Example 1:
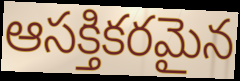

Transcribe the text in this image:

ఆసక్తికరమైన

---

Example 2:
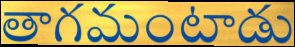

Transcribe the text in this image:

తాగమంటాడు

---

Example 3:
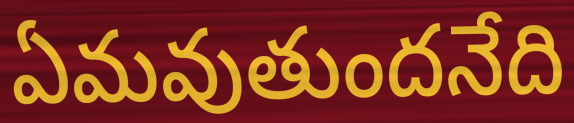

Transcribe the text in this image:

ఏమవుతుందనేది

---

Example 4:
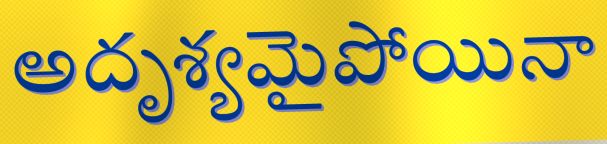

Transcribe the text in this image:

అదృశ్యమైపోయినా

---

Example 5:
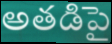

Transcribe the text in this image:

అతడిపై